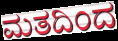
ಮತದಿಂದ